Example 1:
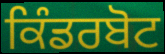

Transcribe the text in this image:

ਕਿੰਡਰਬੋਟ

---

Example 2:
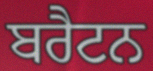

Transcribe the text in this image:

ਬਰੈਟਨ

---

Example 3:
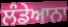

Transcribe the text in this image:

ਲੰਡੇਆਨਾ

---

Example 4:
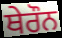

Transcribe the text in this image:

ਥੇਰੌਨ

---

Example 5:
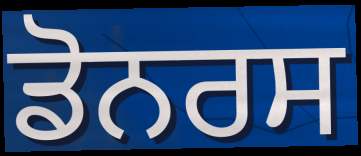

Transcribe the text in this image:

ਡੋਨਰਸ